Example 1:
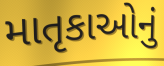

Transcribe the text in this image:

માતૃકાઓનું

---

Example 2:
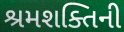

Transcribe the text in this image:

શ્રમશક્તિની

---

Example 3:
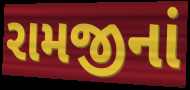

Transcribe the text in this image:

રામજીનાં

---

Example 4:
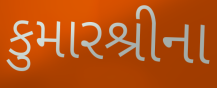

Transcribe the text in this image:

કુમારશ્રીના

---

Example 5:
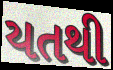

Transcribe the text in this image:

યતથી